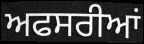
ਅਫਸਰੀਆਂ